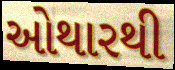
ઓથારથી